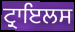
ਟ੍ਰਾਇਲਸ